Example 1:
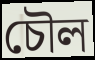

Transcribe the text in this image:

চৌল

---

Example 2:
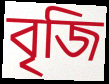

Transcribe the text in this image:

বৃজি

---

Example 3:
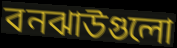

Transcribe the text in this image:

বনঝাউগুলো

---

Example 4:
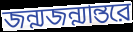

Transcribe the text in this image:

জন্মজন্মান্তরে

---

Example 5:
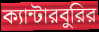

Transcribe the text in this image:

ক্যান্টারবুরির